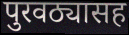
पुरवठ्यासह